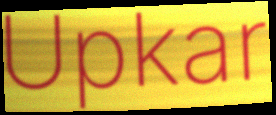
Upkar